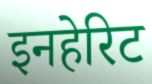
इनहेरिट